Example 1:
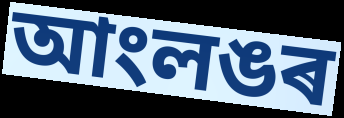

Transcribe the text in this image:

আংলঙৰ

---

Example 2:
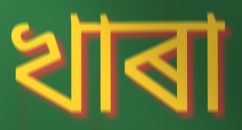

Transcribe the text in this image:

খাৰা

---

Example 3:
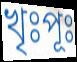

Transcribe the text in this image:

খৃঃপূঃ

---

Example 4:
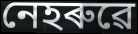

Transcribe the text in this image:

নেহৰুৱে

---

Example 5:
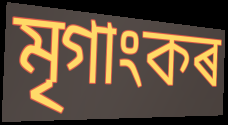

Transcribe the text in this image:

মৃগাংকৰ